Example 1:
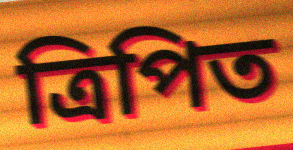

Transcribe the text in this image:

ত্রিপিত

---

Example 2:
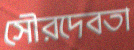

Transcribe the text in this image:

সৌরদেবতা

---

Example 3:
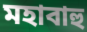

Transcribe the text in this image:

মহাবাহু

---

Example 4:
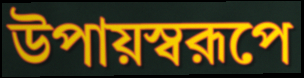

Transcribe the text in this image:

উপায়স্বরূপে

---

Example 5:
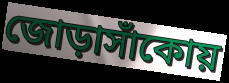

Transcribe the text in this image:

জোড়াসাঁকোয়